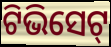
ଟିଭିସେଟ୍